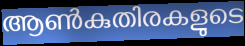
ആൺകുതിരകളുടെ